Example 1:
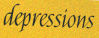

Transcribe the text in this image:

depressions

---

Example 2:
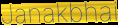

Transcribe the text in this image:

Janakbhai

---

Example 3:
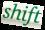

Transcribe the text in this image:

shift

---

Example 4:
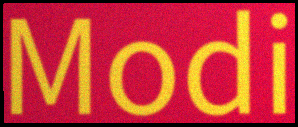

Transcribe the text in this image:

Modi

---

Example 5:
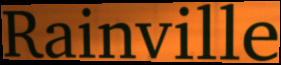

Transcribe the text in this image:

Rainville